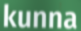
kunna